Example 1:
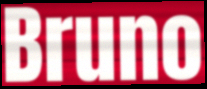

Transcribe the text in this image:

Bruno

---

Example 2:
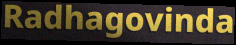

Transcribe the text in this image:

Radhagovinda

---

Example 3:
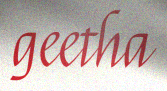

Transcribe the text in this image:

geetha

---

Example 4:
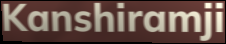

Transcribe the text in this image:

Kanshiramji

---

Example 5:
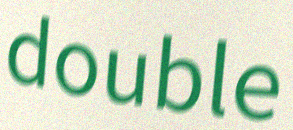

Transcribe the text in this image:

double